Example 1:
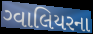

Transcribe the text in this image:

ગ્વાલિયરના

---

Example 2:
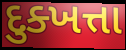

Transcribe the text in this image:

દુક્ખત્તા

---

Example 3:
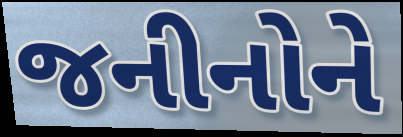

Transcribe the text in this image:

જનીનોને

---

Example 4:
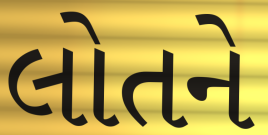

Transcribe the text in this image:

લોતને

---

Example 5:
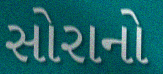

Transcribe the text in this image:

સોરાનો